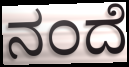
ನಂದೆ